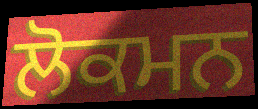
ਲੋਕਮਨ